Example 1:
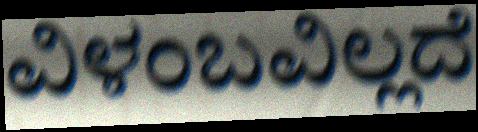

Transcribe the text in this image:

ವಿಳಂಬವಿಲ್ಲದೆ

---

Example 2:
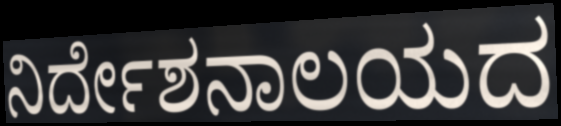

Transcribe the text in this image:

ನಿರ್ದೇಶನಾಲಯದ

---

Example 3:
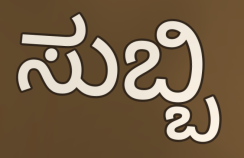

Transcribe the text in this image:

ಸುಬ್ಬಿ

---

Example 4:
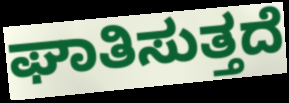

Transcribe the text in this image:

ಘಾತಿಸುತ್ತದೆ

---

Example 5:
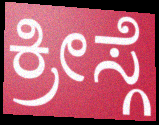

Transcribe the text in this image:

ಕ್ರೀಸ್ಗೆ